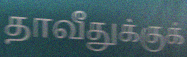
தாவீதுக்குக்